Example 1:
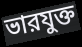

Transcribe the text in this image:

ভারযুক্ত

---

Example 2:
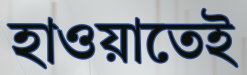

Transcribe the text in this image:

হাওয়াতেই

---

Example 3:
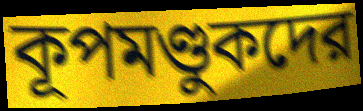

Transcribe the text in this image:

কূপমণ্ডুকদের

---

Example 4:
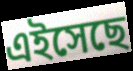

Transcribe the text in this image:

এইসেছে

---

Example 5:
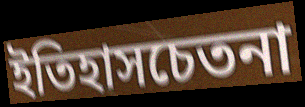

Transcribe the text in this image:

ইতিহাসচেতনা